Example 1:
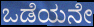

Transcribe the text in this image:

ಒಡೆಯನೇ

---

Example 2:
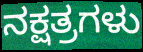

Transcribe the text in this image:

ನಕ್ಷತ್ರಗಳು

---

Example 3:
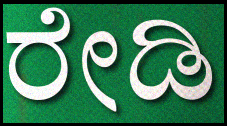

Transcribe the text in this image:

ರೇಡಿ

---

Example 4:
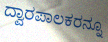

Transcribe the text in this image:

ದ್ವಾರಪಾಲಕರನ್ನೂ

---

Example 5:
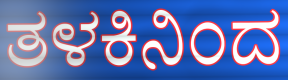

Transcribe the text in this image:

ತಳಕಿನಿಂದ